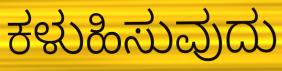
ಕಳುಹಿಸುವುದು